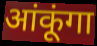
आंकूंगा